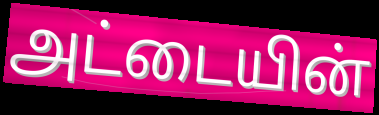
அட்டையின்